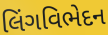
લિંગવિભેદન